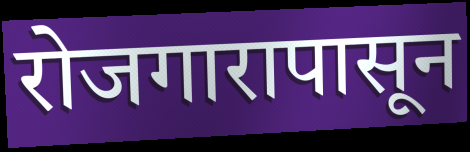
रोजगारापासून